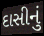
દાસીનું